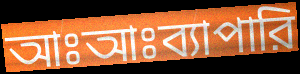
আঃআঃব্যাপারি